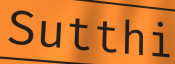
Sutthi